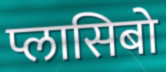
प्लासिबो